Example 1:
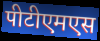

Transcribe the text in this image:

पीटीएमएस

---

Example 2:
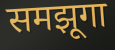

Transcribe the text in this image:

समझूगा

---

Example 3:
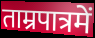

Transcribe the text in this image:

ताम्रपात्रमें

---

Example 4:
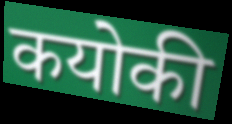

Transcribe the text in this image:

कयोकी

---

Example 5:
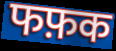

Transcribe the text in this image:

फफ़क